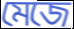
মেজে